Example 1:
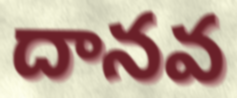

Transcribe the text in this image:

దానవ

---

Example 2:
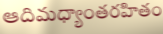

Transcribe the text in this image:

ఆదిమధ్యాంతరహితం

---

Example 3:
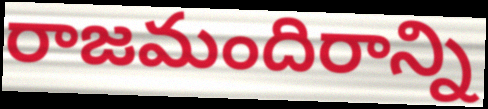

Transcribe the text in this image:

రాజమందిరాన్ని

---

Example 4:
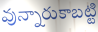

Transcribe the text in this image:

వున్నారుకాబట్టి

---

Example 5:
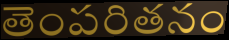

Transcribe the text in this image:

తెంపరితనం